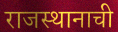
राजस्थानाची